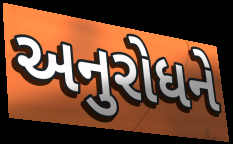
અનુરોધને